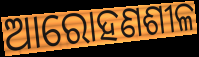
ଆରୋହଣଶୀଳ